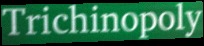
Trichinopoly